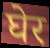
घेर